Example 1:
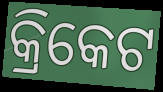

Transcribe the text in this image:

କ୍ରିକେଟ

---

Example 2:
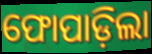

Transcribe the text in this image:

ଫୋପାଡ଼ିଲା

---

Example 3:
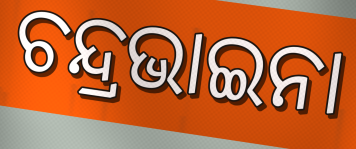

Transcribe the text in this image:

ଚନ୍ଦ୍ରଭାଇନା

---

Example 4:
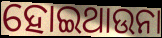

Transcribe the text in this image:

ହୋଇଥାଉନା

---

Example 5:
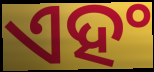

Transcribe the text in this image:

ଏହଂ